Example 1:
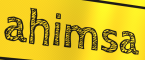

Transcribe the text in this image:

ahimsa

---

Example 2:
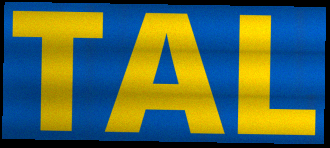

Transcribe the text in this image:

TAL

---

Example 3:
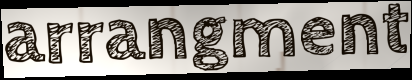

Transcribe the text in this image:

arrangment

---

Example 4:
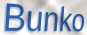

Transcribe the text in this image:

Bunko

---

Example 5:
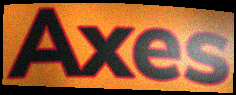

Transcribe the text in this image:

Axes